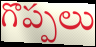
గొప్పలు